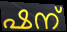
ഷന്